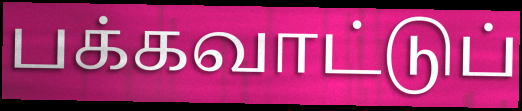
பக்கவாட்டுப்